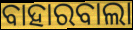
ବାହାରବାଲା